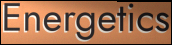
Energetics